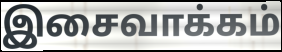
இசைவாக்கம்